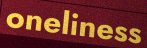
oneliness